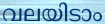
വലയിടാം